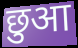
छुआ